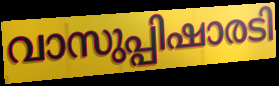
വാസുപ്പിഷാരടി